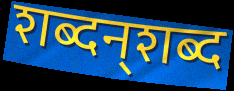
शब्दन्‌शब्द